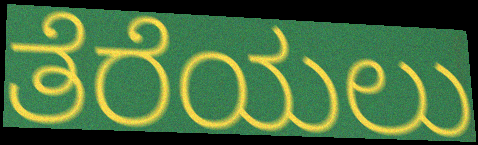
ತೆರೆಯಲು